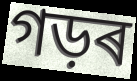
গড়ৰ